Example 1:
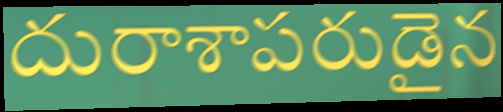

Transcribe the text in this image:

దురాశాపరుడైన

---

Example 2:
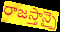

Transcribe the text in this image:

రాజస్తాన్పై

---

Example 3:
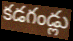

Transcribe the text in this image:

కడగండ్లు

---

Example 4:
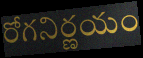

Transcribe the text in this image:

రోగనిర్ణయం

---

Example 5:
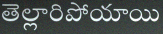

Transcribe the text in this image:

తెల్లారిపోయాయి